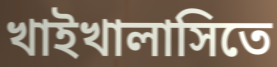
খাইখালাসিতে